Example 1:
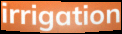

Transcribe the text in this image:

irrigation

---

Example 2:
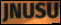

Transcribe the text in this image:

JNUSU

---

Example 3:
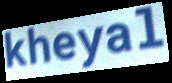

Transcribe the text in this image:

kheyal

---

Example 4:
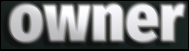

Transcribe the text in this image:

owner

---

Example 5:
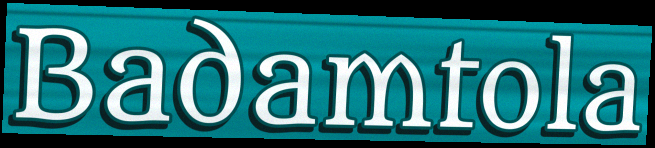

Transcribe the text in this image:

Badamtola